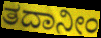
ತದಾನೀಂ